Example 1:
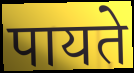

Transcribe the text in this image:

पायते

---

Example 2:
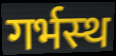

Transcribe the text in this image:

गर्भस्‍थ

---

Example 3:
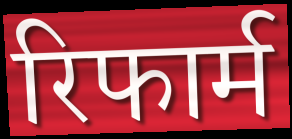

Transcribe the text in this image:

रिफार्म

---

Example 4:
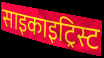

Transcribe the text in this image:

साइकाइट्रिस्ट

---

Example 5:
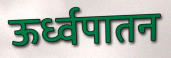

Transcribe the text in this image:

ऊर्ध्वपातन